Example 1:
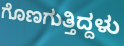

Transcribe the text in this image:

ಗೊಣಗುತ್ತಿದ್ದಳು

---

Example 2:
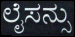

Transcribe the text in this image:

ಲೈಸನ್ಸು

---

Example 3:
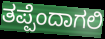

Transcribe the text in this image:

ತಪ್ಪೆಂದಾಗಲಿ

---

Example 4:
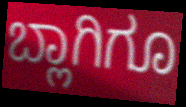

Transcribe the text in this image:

ಬ್ಲಾಗಿಗೂ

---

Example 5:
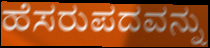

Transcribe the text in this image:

ಹೆಸರುಪದವನ್ನು